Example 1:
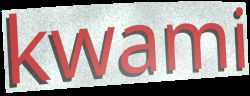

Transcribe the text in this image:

kwami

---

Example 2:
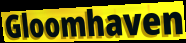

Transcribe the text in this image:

Gloomhaven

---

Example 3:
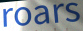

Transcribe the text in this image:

roars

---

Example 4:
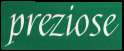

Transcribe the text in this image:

preziose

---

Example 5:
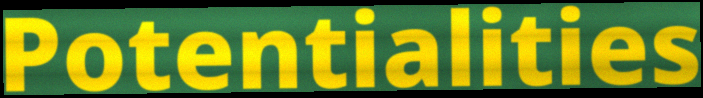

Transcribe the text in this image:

Potentialities